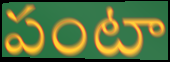
పంటా